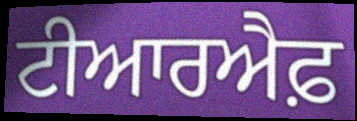
ਟੀਆਰਐਫ਼